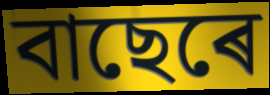
বাছেৰে